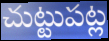
చుట్టుపట్ల